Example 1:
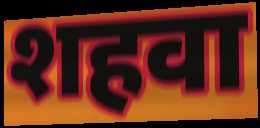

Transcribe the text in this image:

शहवा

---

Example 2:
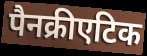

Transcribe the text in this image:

पैनक्रीएटिक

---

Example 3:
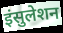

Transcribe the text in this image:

इंसुलेशन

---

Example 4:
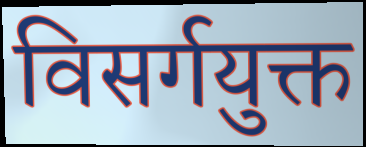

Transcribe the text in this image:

विसर्गयुक्त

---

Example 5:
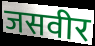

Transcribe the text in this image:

जसवीर